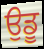
ਉਡੂ